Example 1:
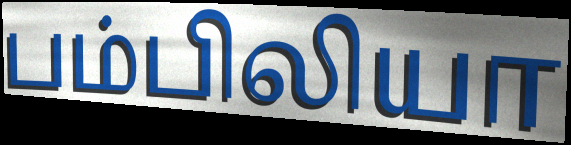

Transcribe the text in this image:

பம்பிலியா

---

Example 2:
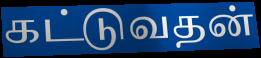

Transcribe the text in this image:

கட்டுவதன்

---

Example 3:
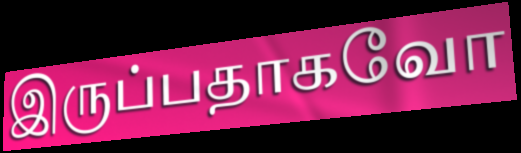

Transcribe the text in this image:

இருப்பதாகவோ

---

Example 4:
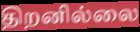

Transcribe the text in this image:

திறனில்லை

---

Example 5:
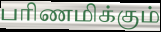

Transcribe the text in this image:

பரிணமிக்கும்